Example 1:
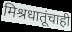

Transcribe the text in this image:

मिश्रधातूंचाही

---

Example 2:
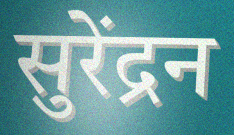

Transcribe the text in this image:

सुरेंद्रन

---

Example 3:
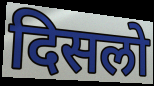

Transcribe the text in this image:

दिसलो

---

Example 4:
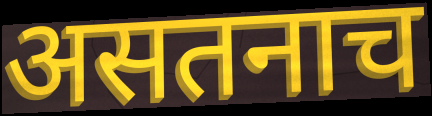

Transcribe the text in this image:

असतनाच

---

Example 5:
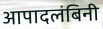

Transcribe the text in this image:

आपादलंबिनी